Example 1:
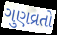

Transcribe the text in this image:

ગુણવ્રતો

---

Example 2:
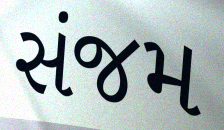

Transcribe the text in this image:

સંજમ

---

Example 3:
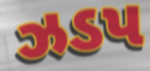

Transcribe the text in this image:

ઝડપ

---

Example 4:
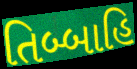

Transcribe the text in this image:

તિબ્બાહિ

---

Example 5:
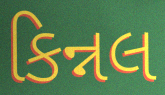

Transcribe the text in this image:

કિન્નલ